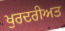
ਖੁਰਦਰੀਅਤ